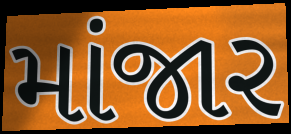
માંજાર